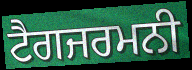
ਟੈਗਜਰਮਨੀ